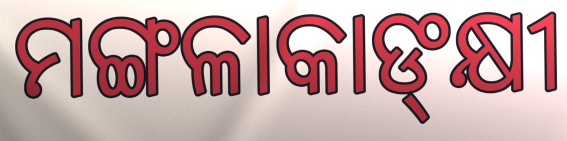
ମଙ୍ଗଳାକାଙ୍କ୍ଷୀ